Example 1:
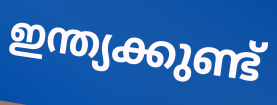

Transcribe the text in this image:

ഇന്ത്യക്കുണ്ട്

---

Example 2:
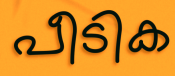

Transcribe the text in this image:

പീടിക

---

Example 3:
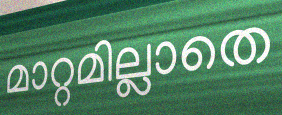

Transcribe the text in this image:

മാറ്റമില്ലാതെ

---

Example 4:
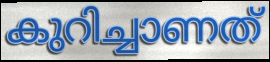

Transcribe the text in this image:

കുറിച്ചാണത്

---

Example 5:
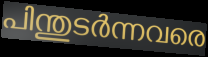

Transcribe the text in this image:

പിന്തുടർന്നവരെ